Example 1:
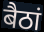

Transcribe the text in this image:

बैठां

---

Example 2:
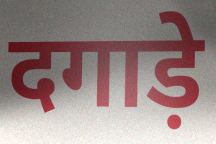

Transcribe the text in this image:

दगाड़े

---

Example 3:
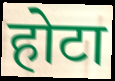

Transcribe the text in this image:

होटा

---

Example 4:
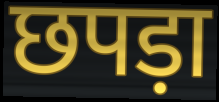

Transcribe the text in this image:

छपड़ा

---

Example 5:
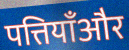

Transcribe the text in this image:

पत्तियाँऔर